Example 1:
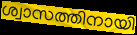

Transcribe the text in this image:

ശ്വാസത്തിനായി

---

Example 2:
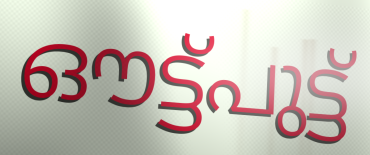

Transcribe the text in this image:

ഔട്ട്പുട്ട്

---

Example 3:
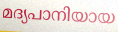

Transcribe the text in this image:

മദ്യപാനിയായ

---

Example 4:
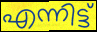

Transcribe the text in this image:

എന്നിട്ട്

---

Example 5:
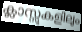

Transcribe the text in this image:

ക്ലാസ്സുകളിലും